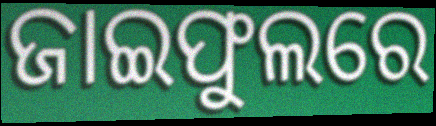
ଜାଇଫୁଲରେ